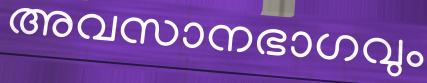
അവസാനഭാഗവും